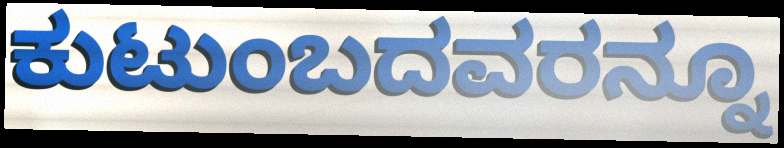
ಕುಟುಂಬದವರನ್ನೂ